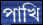
পাখি